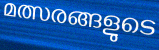
മത്സരങ്ങളുടെ